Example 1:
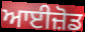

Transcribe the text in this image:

ਆਈਜ਼ੋਡ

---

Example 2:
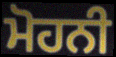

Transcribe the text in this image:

ਮੋਹਨੀ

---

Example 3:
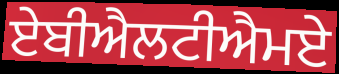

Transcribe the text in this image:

ਏਬੀਐਲਟੀਐਮਏ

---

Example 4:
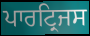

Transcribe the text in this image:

ਪਾਰਟ੍ਰਿਜਸ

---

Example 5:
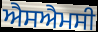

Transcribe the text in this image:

ਐਸਐਮਸੀ